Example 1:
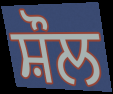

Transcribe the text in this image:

ਸ਼ੌਲ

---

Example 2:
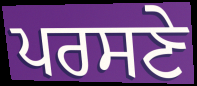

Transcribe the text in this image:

ਪਰਸਣੇ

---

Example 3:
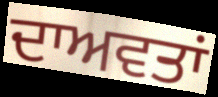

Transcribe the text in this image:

ਦਾਅਵਤਾਂ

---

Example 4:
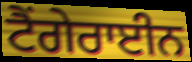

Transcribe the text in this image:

ਟੈਂਗੇਰਾਈਨ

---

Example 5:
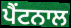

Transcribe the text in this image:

ਪੈਂਟਨਾਲ